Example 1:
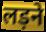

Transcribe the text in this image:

लड़ने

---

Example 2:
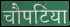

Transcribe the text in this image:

चौपटिया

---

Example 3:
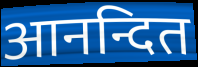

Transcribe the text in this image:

आनन्दित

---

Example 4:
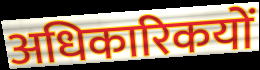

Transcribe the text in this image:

अधिकारिकयों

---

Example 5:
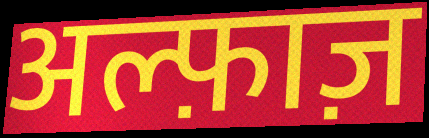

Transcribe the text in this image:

अल्फ़ाज़